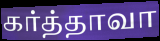
கர்த்தாவா